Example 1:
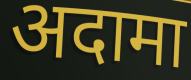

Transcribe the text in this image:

अदामा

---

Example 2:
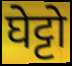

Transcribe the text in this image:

घेट्टो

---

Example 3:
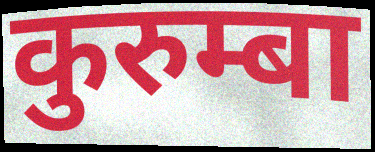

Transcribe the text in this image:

कुरुम्बा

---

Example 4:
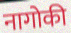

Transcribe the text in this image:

नागोकी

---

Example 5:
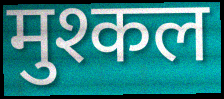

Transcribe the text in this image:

मुश्कल